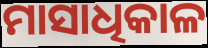
ମାସାଧିକାଳ